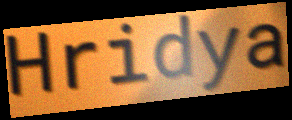
Hridya